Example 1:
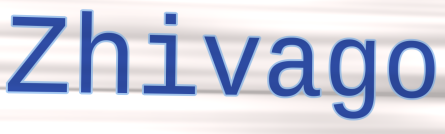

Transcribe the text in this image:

Zhivago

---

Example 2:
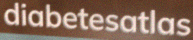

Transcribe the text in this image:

diabetesatlas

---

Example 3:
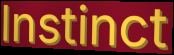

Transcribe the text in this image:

lnstinct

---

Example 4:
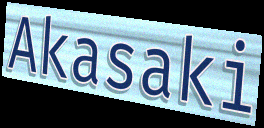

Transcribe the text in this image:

Akasaki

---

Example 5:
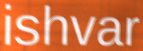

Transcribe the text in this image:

ishvar